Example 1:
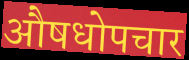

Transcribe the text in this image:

औषधोपचार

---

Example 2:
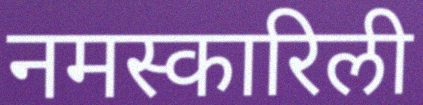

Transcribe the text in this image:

नमस्कारिली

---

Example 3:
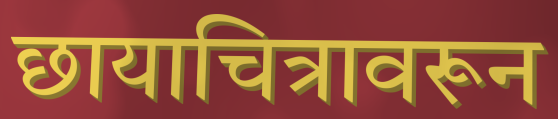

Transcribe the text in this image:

छायाचित्रावरून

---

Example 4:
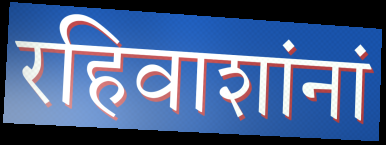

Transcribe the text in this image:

रहिवाशांनां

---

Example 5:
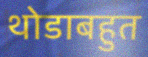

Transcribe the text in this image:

थोडाबहुत